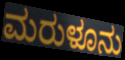
ಮರುಳೂನು